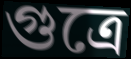
গুত্রে